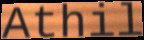
Athil